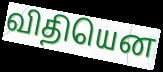
விதியென